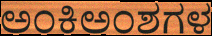
ಅಂಕಿಅಂಶಗಳ